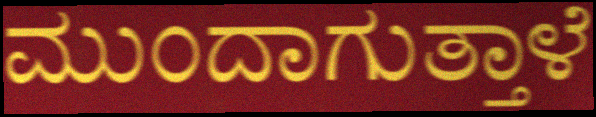
ಮುಂದಾಗುತ್ತಾಳೆ